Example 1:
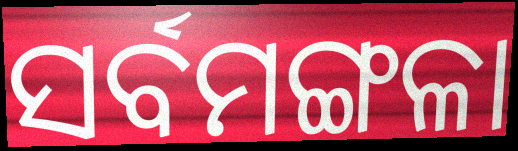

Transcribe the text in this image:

ସର୍ବମଙ୍ଗଳା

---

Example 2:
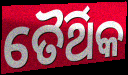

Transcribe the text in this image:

ତୈର୍ଥିକ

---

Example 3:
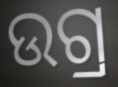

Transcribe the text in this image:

ଉଗ୍ର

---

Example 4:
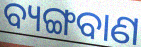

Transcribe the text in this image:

ବ୍ୟଙ୍ଗବାଣ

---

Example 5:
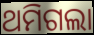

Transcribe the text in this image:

ଥମିଗଲା